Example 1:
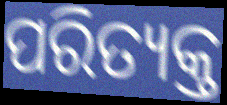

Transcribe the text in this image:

ପରିତ୍ୟକ୍ତ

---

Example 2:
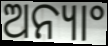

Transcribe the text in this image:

ଅନ୍ୟାଂ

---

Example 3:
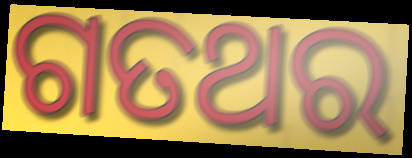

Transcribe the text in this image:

ଗତଥର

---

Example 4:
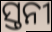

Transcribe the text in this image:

ସ୍ତନୀ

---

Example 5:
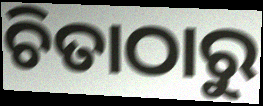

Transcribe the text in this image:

ଚିତାଠାରୁ